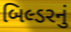
બિલ્ડરનું